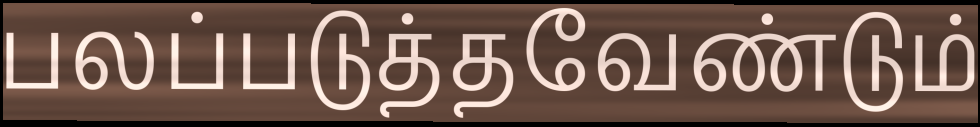
பலப்படுத்தவேண்டும்